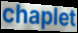
chaplet